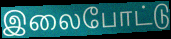
இலைபோட்டு